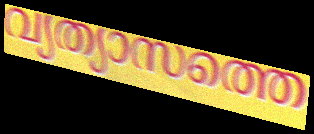
വ്യത്യാസത്തെ